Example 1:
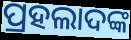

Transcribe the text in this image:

ପ୍ରହଲାଦଙ୍କ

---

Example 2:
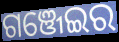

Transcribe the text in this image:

ଗଞ୍ଜେଇର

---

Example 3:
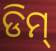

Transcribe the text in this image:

ଡିମ୍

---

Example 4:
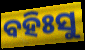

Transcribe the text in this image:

ବହିଃସୁ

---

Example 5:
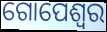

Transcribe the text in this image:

ଗୋପେଶ୍ଵର